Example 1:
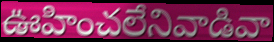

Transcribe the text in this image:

ఊహించలేనివాడివా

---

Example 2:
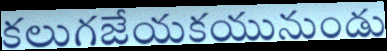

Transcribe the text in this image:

కలుగజేయకయునుండు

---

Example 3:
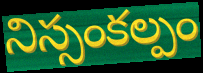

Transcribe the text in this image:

నిస్సంకల్పం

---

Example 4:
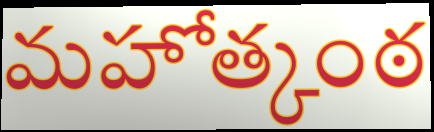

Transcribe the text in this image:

మహోత్కంఠ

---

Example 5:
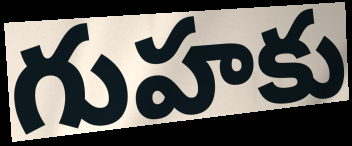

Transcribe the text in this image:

గుహకు